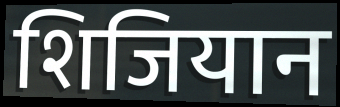
शिजियान